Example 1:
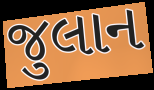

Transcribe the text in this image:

જુલાન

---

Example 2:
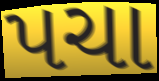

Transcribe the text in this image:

પચા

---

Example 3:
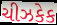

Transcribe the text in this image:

ચીઝકેક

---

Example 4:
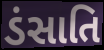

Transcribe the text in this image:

ડંસાતિ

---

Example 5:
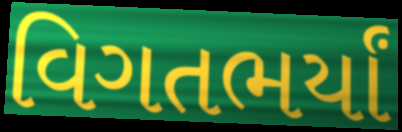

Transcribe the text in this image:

વિગતભર્યાં